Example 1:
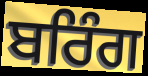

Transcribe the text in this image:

ਬਰਿੰਗ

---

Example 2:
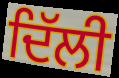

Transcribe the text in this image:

ਦਿੱਲੀ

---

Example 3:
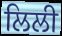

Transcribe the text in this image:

ਲਿਲੀ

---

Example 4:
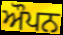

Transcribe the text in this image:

ਔਪਨ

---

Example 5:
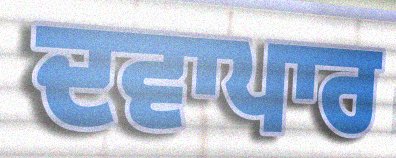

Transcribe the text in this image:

ਦਵਾਪਾਰ